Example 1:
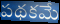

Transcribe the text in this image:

పథకమే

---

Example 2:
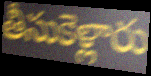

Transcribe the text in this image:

తీసుకెళ్లారు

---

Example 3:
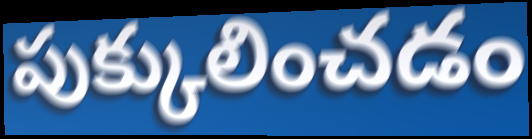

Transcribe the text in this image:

పుక్కులించడం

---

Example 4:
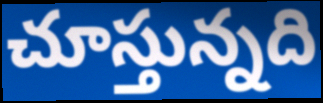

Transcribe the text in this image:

చూస్తున్నది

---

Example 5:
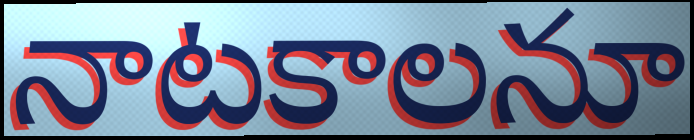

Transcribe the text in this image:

నాటకాలనూ